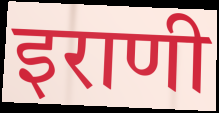
इराणी